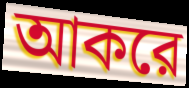
আকরে